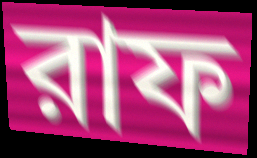
রাফ